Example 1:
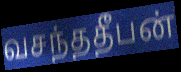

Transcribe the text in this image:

வசந்ததீபன்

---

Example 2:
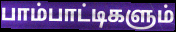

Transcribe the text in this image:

பாம்பாட்டிகளும்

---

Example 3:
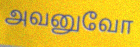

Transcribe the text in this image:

அவனுவோ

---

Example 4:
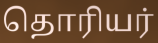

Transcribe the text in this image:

தொரியர்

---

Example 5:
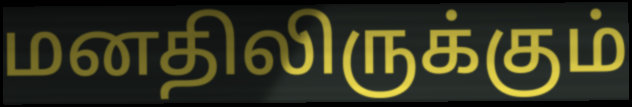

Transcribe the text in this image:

மனதிலிருக்கும்